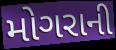
મોગરાની